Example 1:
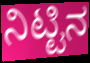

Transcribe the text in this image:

ನಿಟ್ಟಿನ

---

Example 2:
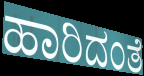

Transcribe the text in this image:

ಹಾರಿದಂತೆ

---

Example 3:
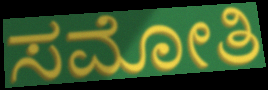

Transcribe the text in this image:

ಸಮೋತಿ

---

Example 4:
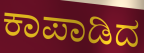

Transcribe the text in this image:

ಕಾಪಾಡಿದ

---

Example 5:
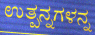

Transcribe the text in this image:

ಉತ್ಪನ್ನಗಳನ್ನ